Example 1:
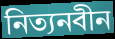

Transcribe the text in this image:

নিত্যনবীন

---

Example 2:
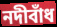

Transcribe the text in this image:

নদীবাঁধ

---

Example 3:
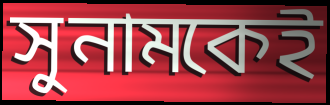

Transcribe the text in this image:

সুনামকেই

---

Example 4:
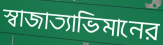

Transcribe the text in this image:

স্বাজাত্যাভিমানের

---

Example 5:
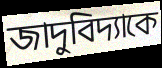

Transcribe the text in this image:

জাদুবিদ্যাকে